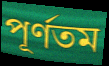
পূর্ণতম